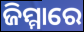
ଜିମ୍ମାରେ